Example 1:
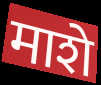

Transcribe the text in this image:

माशे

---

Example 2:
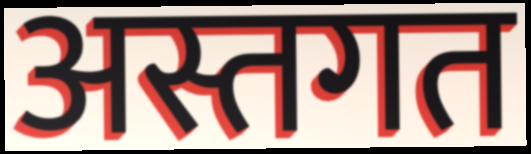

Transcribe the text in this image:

अस्तगत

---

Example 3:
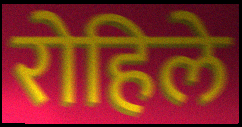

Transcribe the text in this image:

रोहिले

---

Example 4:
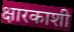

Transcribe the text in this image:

क्षारकाशी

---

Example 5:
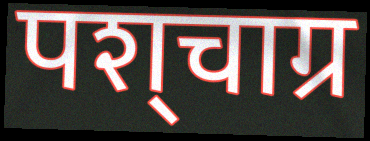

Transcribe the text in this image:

पश्चाग्र